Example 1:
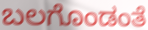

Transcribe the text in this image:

ಬಲಗೊಂಡಂತೆ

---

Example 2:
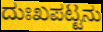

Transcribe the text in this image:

ದುಃಖಪಟ್ಟನು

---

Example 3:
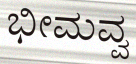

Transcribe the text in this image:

ಭೀಮವ್ವ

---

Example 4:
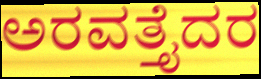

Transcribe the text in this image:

ಅರವತ್ತೈದರ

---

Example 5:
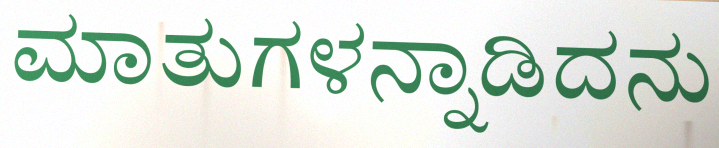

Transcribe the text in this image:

ಮಾತುಗಳನ್ನಾಡಿದನು